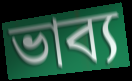
ভাব্য